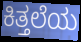
ಕಿತ್ತಲೆಯ